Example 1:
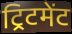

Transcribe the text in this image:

ट्रिटमेंट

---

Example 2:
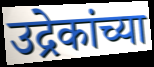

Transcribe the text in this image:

उद्रेकांच्या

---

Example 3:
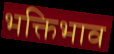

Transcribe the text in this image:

भक्तिभाव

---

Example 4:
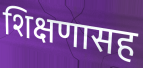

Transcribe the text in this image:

शिक्षणासह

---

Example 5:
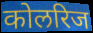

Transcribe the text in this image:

कोलरिज